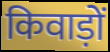
किवाड़ों